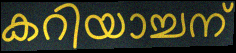
കറിയാച്ചന്